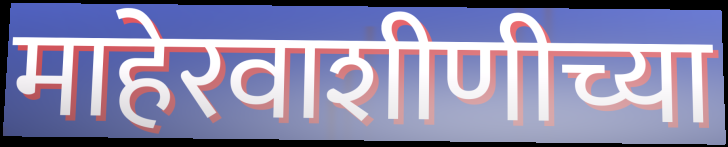
माहेरवाशीणीच्या